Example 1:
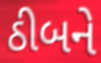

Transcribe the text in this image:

ઠીબને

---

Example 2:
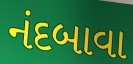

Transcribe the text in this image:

નંદબાવા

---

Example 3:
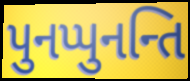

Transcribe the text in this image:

પુનપ્પુનન્તિ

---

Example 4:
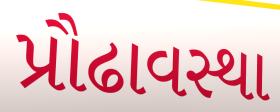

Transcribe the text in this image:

પ્રૌઢાવસ્થા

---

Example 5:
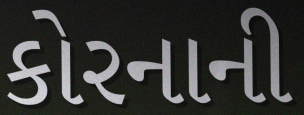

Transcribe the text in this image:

કોરનાની